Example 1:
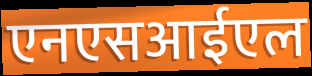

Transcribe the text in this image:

एनएसआईएल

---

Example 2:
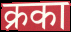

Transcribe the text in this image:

क्रका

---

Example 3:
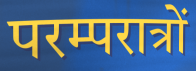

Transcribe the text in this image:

परम्परात्रों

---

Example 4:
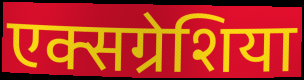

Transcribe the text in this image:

एक्सग्रेशिया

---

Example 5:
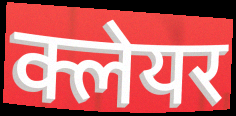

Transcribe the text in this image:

क्लेयर